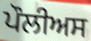
ਪੌਲੀਅਸ